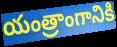
యంత్రాంగానికి